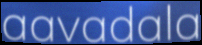
aavadala